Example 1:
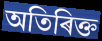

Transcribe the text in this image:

অতিৰিক্ত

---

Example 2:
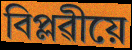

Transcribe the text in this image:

বিপ্লৱীয়ে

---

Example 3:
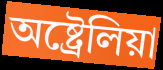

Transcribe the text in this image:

অষ্ট্ৰেলিয়া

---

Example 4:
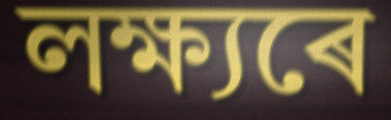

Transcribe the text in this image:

লক্ষ্যৰে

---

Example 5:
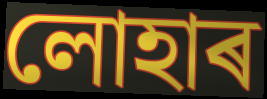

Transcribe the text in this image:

লোহাৰ